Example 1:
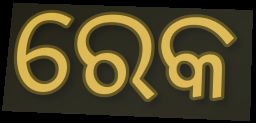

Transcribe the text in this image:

ରେକ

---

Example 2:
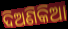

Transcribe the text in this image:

ଦିଅଣିକିଆ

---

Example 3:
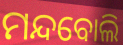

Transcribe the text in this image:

ମନ୍ଦବୋଲି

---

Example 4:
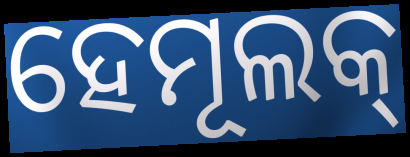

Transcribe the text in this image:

ହେମୂଲକ୍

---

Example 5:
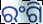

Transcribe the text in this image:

ରଂଗି